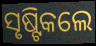
ସୃଷ୍ଟିକଲେ